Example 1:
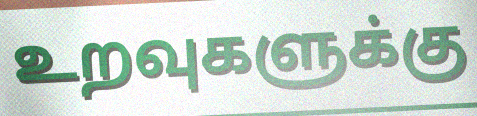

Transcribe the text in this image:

உறவுகளுக்கு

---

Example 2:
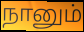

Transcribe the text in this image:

நானும்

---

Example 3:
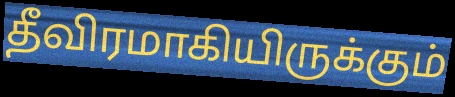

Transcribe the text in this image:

தீவிரமாகியிருக்கும்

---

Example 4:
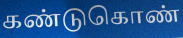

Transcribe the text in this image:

கண்டுகொண்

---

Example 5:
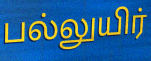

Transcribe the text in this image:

பல்லுயிர்